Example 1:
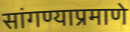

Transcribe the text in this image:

सांगण्याप्रमाणे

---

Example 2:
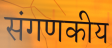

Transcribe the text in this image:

संगणकीय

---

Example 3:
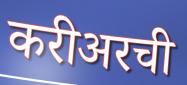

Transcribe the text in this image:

करीअरची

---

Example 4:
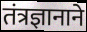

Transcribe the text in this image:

तंत्रज्ञानाने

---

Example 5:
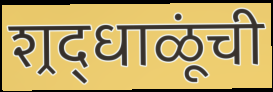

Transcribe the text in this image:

श्रद्धाळूंची